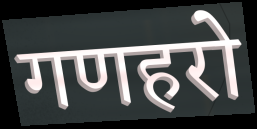
गणहरो